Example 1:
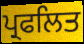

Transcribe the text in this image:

ਪ੍ਰਫਲਿਤ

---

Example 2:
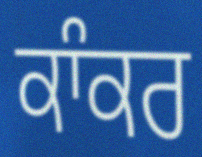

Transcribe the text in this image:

ਕਾੰਕਰ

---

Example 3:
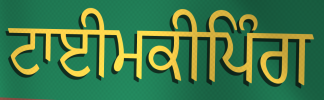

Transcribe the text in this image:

ਟਾਈਮਕੀਪਿੰਗ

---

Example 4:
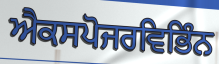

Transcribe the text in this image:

ਐਕਸਪੋਜਰਵਿਭਿੰਨ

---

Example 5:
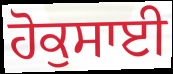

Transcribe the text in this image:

ਹੋਕੁਸਾਈ